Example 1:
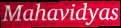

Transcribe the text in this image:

Mahavidyas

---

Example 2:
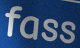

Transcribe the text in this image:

fass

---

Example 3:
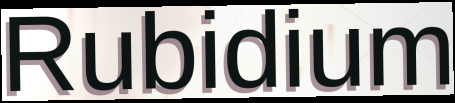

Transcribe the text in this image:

Rubidium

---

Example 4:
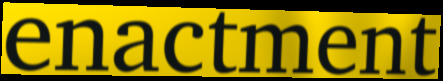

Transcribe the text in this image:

enactment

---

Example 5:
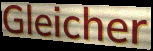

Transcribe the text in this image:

Gleicher